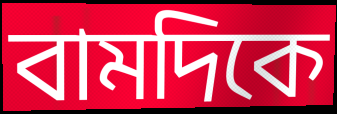
বামদিকে